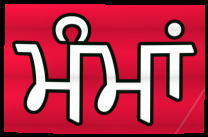
ਮੰਮਾਂ